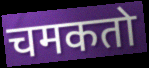
चमकतो